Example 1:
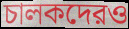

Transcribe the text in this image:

চালকদেরও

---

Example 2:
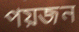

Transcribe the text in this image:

পয়জন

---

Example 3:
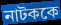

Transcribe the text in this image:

নাটককে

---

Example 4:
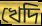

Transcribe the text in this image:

খেদি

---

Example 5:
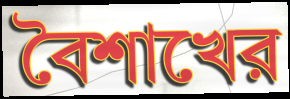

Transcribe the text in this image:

বৈশাখের